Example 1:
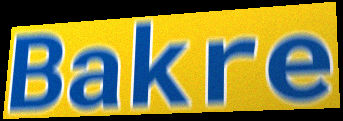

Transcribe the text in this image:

Bakre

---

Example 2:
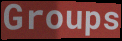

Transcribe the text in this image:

Groups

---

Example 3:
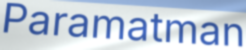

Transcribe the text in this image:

Paramatman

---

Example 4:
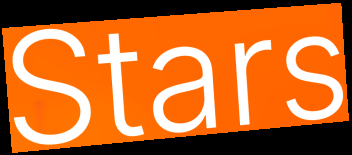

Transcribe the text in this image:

Stars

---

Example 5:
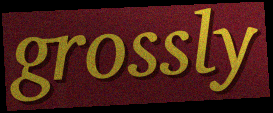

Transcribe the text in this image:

grossly